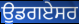
ਉਡਗਏਸਰ